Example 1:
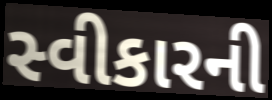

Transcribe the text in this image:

સ્વીકારની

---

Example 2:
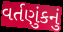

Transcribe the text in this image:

વર્તણુંકનું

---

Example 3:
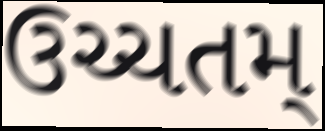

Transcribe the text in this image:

ઉચ્ચતમ્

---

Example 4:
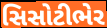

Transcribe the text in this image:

સિસોટીભેર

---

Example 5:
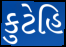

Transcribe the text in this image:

કુટેહિ